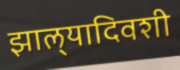
झाल्यादिवशी